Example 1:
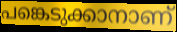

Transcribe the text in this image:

പങ്കെടുക്കാനാണ്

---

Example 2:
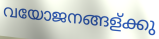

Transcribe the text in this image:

വയോജനങ്ങള്ക്കു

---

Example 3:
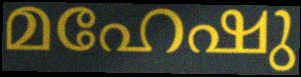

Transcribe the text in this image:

മഹേഷു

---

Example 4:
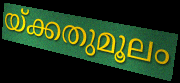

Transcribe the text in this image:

യ്ക്കതുമൂലം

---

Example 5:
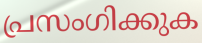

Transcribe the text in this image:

പ്രസംഗിക്കുക